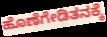
ಹೊಣೆಗೇಡಿತನಕ್ಕೆ